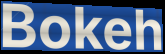
Bokeh